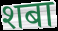
शबा